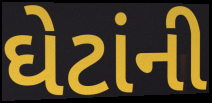
ઘેટાંની